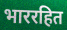
भाररहित